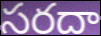
సరదా